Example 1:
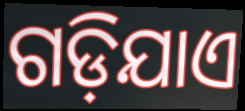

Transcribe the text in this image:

ଗଡ଼ିଯାଏ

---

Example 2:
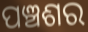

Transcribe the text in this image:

ପଞ୍ଚଶର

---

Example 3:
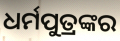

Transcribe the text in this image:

ଧର୍ମପୁତ୍ରଙ୍କର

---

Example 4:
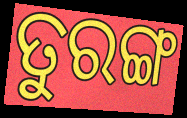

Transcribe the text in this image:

ତୁରଙ୍ଗ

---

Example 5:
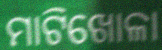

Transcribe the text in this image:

ମାଟିଖୋଳା